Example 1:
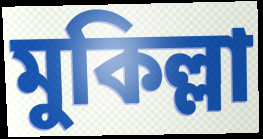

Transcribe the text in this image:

মুকিল্লা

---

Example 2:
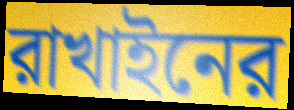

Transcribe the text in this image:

রাখাইনের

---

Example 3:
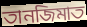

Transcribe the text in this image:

তানজিমাত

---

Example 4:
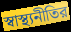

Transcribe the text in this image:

স্বাস্থ্যনীতির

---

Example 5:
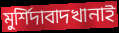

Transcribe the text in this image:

মুর্শিদাবাদখানাই